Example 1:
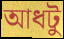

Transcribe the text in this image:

আধটু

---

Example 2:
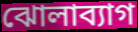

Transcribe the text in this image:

ঝোলাব্যাগ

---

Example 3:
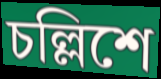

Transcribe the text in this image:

চল্লিশে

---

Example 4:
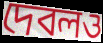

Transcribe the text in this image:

দেবলও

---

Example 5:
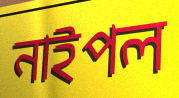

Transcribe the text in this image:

নাইপল